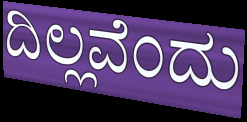
ದಿಲ್ಲವೆಂದು